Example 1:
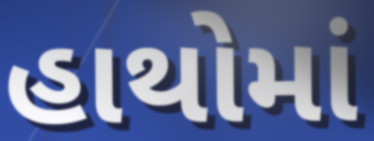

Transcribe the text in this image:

હાથોમાં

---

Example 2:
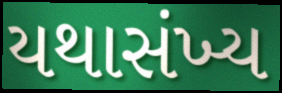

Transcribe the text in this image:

યથાસંખ્ય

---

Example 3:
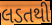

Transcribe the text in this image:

લડતથી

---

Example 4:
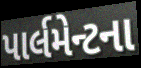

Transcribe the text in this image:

પાર્લમેન્ટના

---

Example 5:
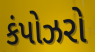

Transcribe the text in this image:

કંપોઝરો